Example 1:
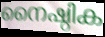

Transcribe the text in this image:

നൈഷ്ഠിക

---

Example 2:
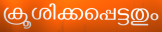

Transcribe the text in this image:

ക്രൂശിക്കപ്പെട്ടതും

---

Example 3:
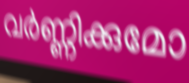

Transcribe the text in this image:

വർണ്ണിക്കുമോ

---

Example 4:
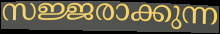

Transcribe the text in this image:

സജ്ജരാക്കുന്ന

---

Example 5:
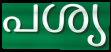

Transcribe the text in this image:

പശ്യ